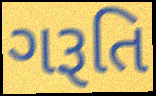
ગરૂતિ